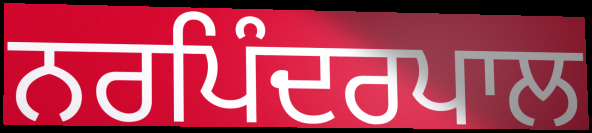
ਨਰਪਿੰਦਰਪਾਲ